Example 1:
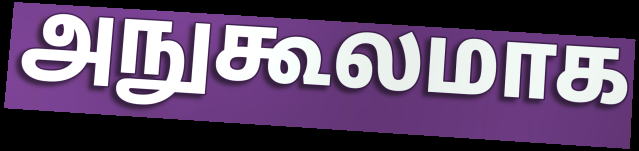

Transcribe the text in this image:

அநுகூலமாக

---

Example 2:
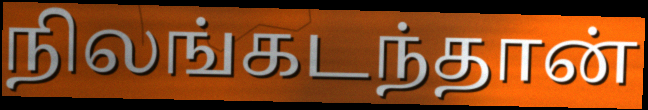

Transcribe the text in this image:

நிலங்கடந்தான்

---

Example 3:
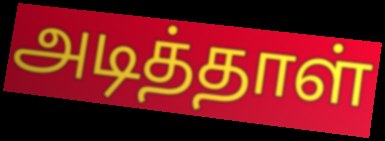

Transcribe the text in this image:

அடித்தாள்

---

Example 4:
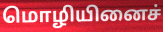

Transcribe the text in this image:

மொழியினைச்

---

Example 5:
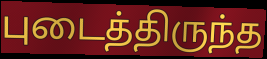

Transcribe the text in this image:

புடைத்திருந்த